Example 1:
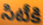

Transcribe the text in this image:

సిటీకి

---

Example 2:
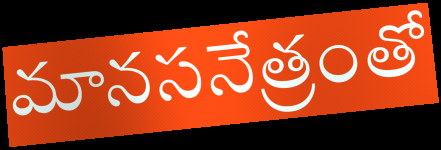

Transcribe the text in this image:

మానసనేత్రంతో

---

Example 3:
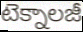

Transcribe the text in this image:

టెక్నాలజీ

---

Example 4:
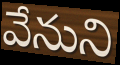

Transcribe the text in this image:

వేనుని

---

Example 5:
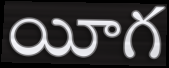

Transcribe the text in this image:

యీగ